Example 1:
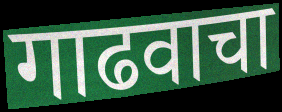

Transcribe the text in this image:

गाढवाचा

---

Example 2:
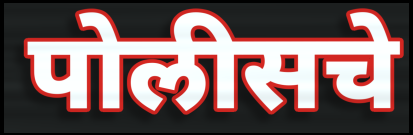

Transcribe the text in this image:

पोलीसचे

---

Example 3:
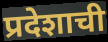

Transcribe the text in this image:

प्रदेशाची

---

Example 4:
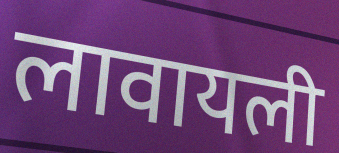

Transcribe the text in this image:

लावायली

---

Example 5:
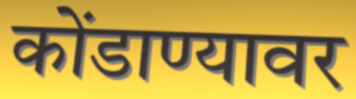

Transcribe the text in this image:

कोंडाण्यावर